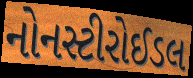
નોનસ્ટીરોઈડલ